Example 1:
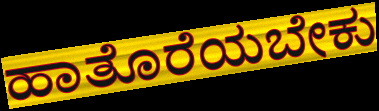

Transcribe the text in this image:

ಹಾತೊರೆಯಬೇಕು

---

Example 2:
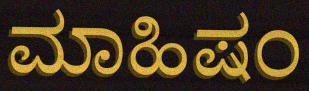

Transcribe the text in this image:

ಮಾಹಿಷಂ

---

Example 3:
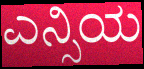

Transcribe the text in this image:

ಎನ್ಸಿಯ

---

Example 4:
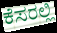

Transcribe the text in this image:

ಕೆಸರಲ್ಲಿ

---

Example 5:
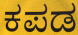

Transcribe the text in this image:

ಕಪಡ